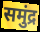
समुंद्र